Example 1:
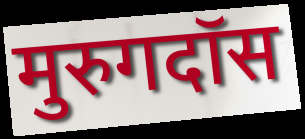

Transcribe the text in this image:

मुरुगदॉस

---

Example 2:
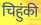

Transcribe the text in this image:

चिहुंकी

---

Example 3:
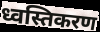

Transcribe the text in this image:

ध्वस्तिकरण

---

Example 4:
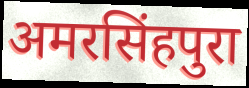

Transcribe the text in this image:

अमरसिंहपुरा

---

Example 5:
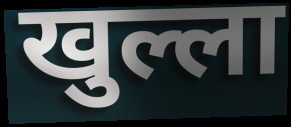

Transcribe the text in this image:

खुल्ला